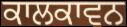
ਕਾਲਕਾਵਨ